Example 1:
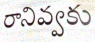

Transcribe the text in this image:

రానివ్వకు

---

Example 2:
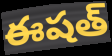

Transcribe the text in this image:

ఈషత్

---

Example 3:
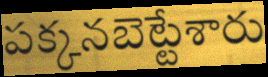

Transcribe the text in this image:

పక్కనబెట్టేశారు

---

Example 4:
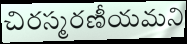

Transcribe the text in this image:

చిరస్మరణీయమని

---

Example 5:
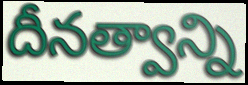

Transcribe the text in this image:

దీనత్వాన్ని